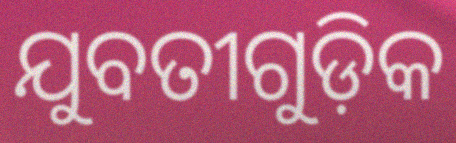
ଯୁବତୀଗୁଡ଼ିକ